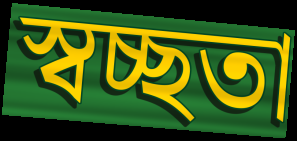
স্বচ্ছতা